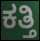
ಕತ್ತಿ